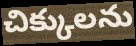
చిక్కులను